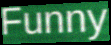
Funny